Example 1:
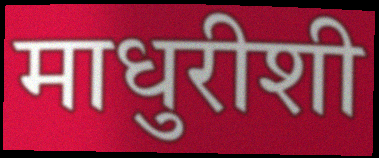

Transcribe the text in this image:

माधुरीशी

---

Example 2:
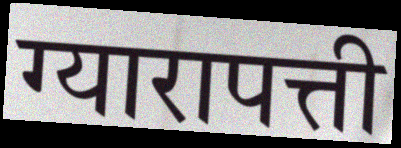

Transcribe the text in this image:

ग्यारापत्ती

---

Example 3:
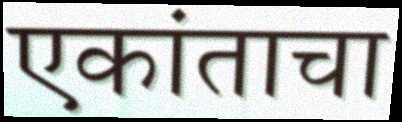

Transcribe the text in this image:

एकांताचा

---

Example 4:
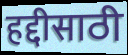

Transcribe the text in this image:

हद्दीसाठी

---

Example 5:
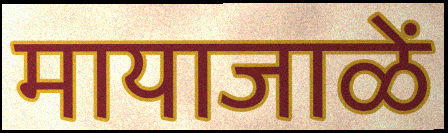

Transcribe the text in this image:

मायाजाळें